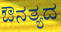
ಔನತ್ಯದ